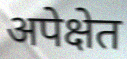
अपेक्षेत